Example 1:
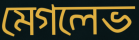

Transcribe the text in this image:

মেগলেভ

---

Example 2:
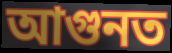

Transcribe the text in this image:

আগুনত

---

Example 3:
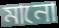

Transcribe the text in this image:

মানো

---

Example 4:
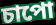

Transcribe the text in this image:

চাপো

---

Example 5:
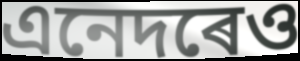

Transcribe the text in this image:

এনেদৰেও